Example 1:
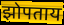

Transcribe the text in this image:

झोपताय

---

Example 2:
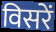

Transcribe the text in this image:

विसरें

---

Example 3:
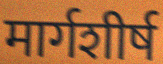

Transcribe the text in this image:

मार्गशीर्ष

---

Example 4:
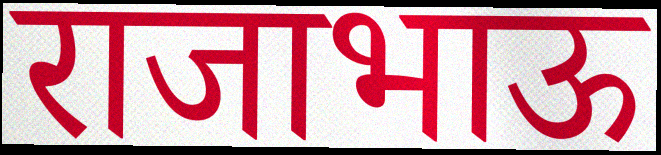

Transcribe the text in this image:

राजाभाऊ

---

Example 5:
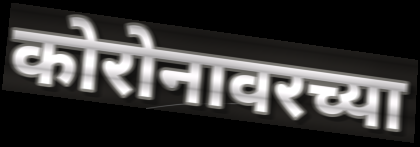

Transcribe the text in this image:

कोरोनावरच्या